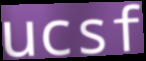
ucsf